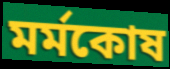
মর্মকোষ